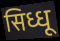
सिध्धू